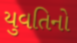
યુવતિનો